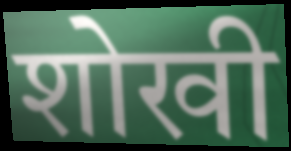
शोखी